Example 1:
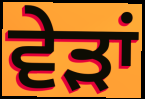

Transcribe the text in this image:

ਵੇੜਾਂ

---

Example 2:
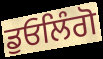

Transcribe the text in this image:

ਡੁਓਲਿੰਗੋ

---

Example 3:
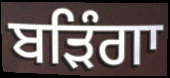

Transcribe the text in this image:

ਬੜਿੰਗਾ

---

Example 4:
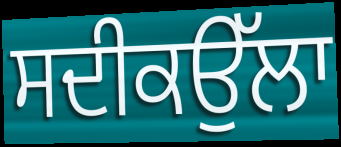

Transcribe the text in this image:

ਸਦੀਕਉੱਲਾ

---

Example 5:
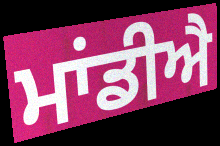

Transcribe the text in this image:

ਮਾਂਡੀਐ